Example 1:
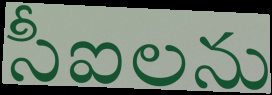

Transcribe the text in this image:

సీఐలను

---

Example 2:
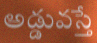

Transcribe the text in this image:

అడ్డువస్తే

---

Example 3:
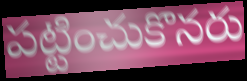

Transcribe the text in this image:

పట్టించుకొనరు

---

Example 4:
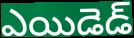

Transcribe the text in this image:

ఎయిడెడ్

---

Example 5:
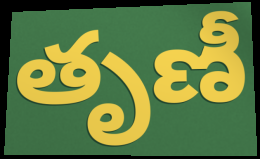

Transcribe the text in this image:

తృణీ